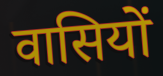
वासियों